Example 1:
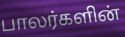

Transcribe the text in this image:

பாலர்களின்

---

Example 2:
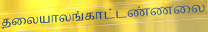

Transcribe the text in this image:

தலையாலங்காட்டண்ணலை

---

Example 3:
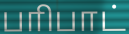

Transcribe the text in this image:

பரிபாட்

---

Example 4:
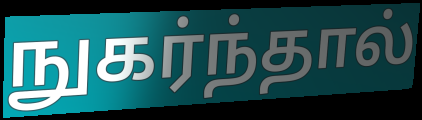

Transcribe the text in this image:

நுகர்ந்தால்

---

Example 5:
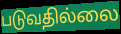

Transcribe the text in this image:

படுவதில்லை